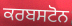
ਕਰਬਸਟੋਨ